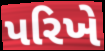
પરિખે